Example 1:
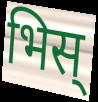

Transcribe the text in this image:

भिस्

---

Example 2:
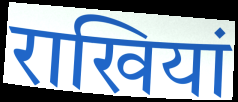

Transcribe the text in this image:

राखियां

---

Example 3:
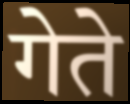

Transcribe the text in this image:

गेते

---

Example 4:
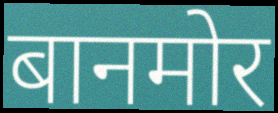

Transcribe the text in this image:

बानमोर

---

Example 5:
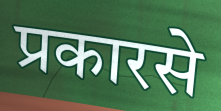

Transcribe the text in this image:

प्रकारसे